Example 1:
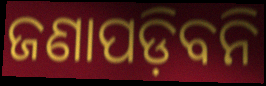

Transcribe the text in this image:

ଜଣାପଡ଼ିବନି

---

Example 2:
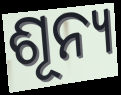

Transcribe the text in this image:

ଶୂନ୍ୟ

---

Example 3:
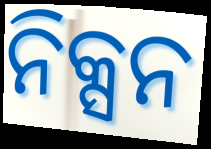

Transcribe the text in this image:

ନିକ୍ସନ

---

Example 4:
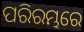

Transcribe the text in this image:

ପରିରମ୍ଭରେ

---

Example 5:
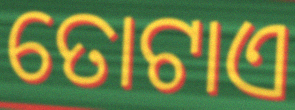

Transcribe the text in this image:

ତୋଟାଏ